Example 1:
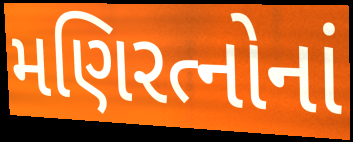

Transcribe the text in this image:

મણિરત્નોનાં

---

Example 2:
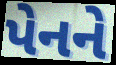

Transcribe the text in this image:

પેનને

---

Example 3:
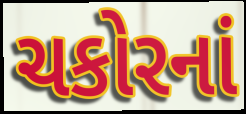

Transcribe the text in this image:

ચકોરનાં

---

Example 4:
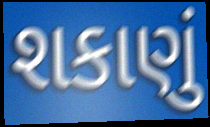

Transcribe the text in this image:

શકાણું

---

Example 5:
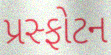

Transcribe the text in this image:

પ્રસ્ફોટન